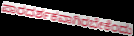
ಪಾರದರ್ಶಕವಾಗಿರಬೇಕೆಂದು